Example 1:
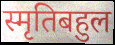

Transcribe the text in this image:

स्मृतिबहुल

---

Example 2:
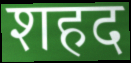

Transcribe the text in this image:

शहद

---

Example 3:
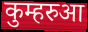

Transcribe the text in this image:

कुम्हरुआ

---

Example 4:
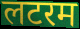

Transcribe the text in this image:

लटरम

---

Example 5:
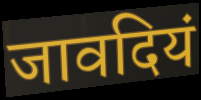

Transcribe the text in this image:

जावदियं